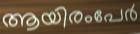
ആയിരംപേർ